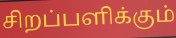
சிறப்பளிக்கும்